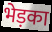
भेड़का